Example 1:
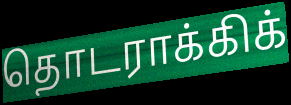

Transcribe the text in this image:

தொடராக்கிக்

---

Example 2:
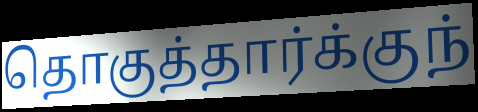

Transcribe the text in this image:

தொகுத்தார்க்குந்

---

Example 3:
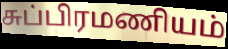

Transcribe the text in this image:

சுப்பிரமணியம்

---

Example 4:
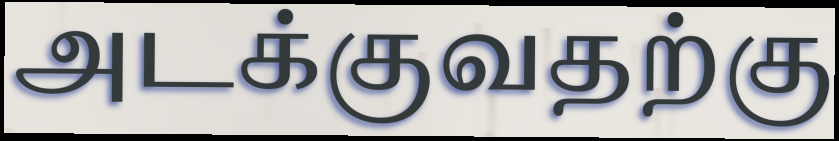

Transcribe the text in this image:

அடக்குவதற்கு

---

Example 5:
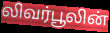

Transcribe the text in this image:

லிவர்பூலின்